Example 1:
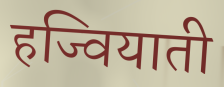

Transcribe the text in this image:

हज्वियाती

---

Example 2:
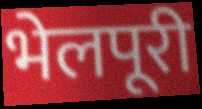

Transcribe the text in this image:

भेलपूरी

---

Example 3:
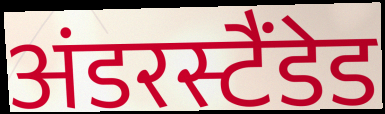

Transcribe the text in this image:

अंडरस्टैंडेड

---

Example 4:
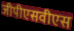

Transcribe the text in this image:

जीपीएसवीएस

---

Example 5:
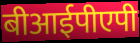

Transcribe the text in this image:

बीआईपीएपी